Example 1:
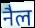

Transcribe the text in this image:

नैल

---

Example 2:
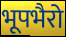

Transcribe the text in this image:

भूपभैरो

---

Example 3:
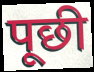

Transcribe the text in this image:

पूछी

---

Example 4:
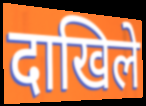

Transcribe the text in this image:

दाखिले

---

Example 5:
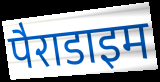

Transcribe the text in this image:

पैराडाइम